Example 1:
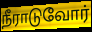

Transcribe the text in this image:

நீராடுவோர்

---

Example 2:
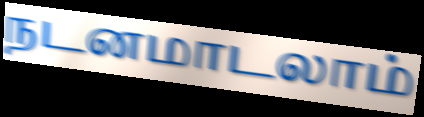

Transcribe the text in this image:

நடனமாடலாம்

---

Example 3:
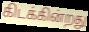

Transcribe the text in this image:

கிடக்கின்றது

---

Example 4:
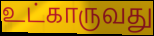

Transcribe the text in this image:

உட்காருவது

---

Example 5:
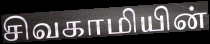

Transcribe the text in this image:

சிவகாமியின்